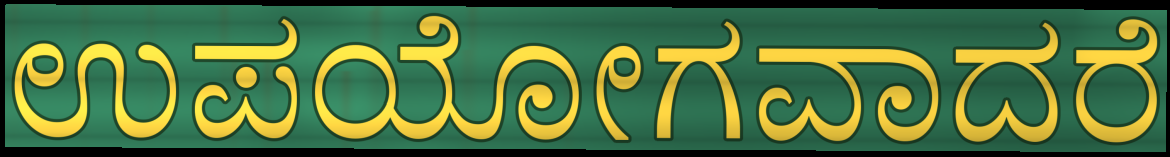
ಉಪಯೋಗವಾದರೆ